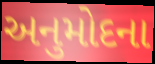
અનુમોદના